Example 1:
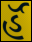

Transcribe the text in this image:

ર્હૅ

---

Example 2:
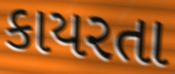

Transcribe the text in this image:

કાયરતા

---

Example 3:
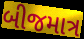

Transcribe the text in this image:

બીજમાત્ર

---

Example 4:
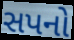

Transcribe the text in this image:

સપનો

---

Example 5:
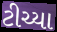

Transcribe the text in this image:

ટીચ્યા